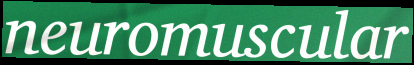
neuromuscular